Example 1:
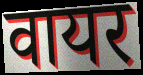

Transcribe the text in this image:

वायर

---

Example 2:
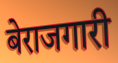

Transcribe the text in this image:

बेराजगारी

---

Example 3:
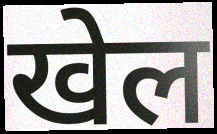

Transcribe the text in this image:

खेल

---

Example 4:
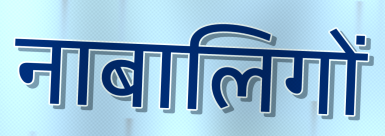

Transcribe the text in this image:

नाबालिगों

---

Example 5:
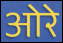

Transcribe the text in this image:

ओरे